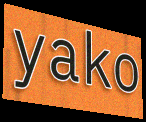
yako